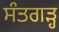
ਸੰਤਗੜ੍ਹ